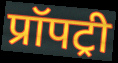
प्रॉपट्री